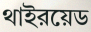
থাইরয়েড